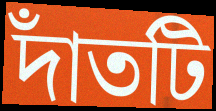
দাঁতটি